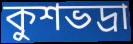
কুশভদ্রা